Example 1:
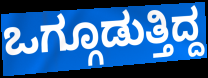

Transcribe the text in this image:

ಒಗ್ಗೂಡುತ್ತಿದ್ದ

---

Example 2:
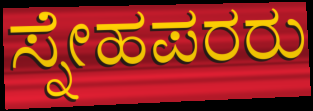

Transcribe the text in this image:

ಸ್ನೇಹಪರರು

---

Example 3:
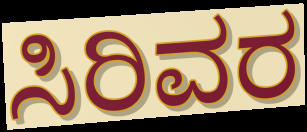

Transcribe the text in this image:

ಸಿರಿವರ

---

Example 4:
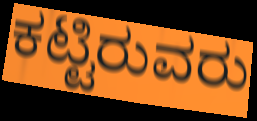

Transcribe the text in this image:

ಕಟ್ಟಿರುವರು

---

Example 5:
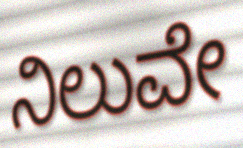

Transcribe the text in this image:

ನಿಲುವೇ